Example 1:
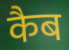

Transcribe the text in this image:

कैब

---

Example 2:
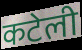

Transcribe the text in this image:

कटेली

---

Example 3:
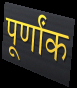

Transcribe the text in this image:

पूर्णांक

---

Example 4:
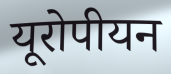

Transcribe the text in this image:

यूरोपीयन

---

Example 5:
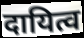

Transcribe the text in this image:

दायित्व